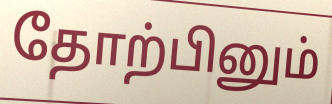
தோற்பினும்